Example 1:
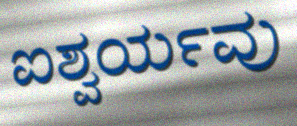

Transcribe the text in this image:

ಐಶ್ವರ್ಯವು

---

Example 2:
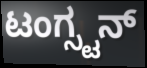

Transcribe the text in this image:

ಟಂಗ್ಸ್ಟನ್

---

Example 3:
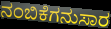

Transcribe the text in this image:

ನಂಬಿಕೆಗನುಸಾರ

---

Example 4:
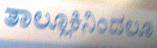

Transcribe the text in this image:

ತಾಲ್ಲೂಕಿನಿಂದಲೂ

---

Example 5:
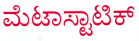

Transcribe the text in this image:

ಮೆಟಾಸ್ಟಾಟಿಕ್